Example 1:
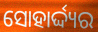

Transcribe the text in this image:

ସୋହାର୍ଦ୍ଦ୍ୟର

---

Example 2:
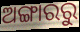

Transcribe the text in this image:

ଅଙ୍ଗାରରୁ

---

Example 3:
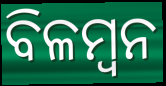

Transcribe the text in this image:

ବିଳମ୍ବନ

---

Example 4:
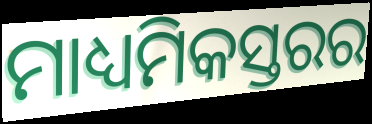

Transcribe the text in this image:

ମାଧ୍ୟମିକସ୍ତରର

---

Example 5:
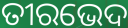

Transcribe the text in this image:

ତୀରଭେଦ